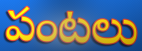
పంటలు